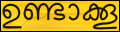
ഉണ്ടാക്കൂ